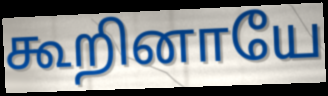
கூறினாயே